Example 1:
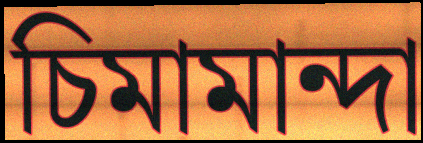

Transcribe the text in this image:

চিমামান্দা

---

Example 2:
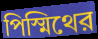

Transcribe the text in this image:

পিস্মিথের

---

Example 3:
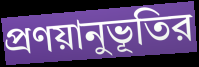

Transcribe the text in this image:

প্রণয়ানুভূতির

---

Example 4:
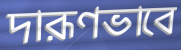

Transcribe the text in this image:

দারূণভাবে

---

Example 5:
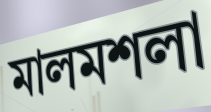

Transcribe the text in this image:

মালমশলা